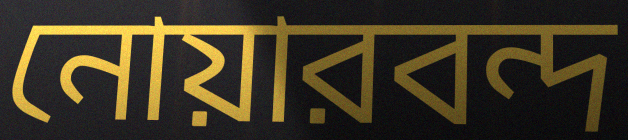
নোয়ারবন্দ